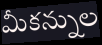
మీకన్నుల